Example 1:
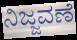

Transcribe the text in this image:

ನಿಜ್ಜವಣೆ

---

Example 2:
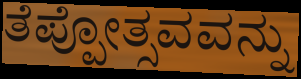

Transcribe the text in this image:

ತೆಪ್ಪೋತ್ಸವವನ್ನು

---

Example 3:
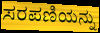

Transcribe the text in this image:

ಸರಪಣಿಯನ್ನು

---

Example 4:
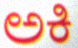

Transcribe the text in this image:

ಅಕಿ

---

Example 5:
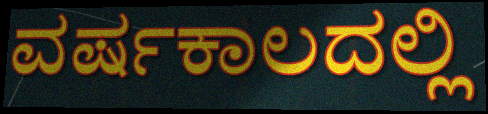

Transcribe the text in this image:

ವರ್ಷಕಾಲದಲ್ಲಿ